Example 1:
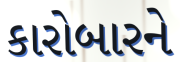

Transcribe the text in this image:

કારોબારને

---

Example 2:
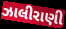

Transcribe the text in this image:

ઝાલીરાણી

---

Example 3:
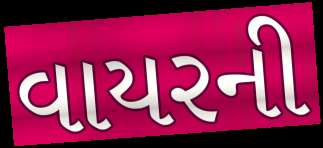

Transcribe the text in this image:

વાયરની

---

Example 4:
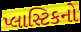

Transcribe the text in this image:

પ્લાસ્ટિકનો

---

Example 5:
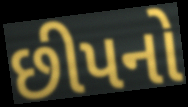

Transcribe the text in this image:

છીપનો